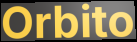
Orbito